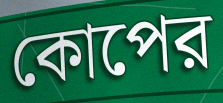
কোপের